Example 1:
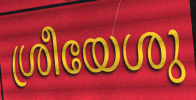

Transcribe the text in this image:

ശ്രീയേശു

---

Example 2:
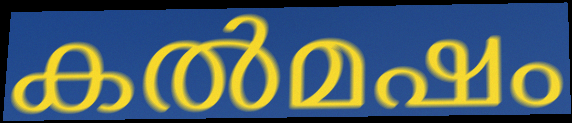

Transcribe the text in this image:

കൽമഷം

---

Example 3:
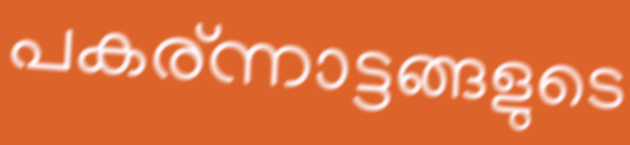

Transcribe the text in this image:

പകര്ന്നാട്ടങ്ങളുടെ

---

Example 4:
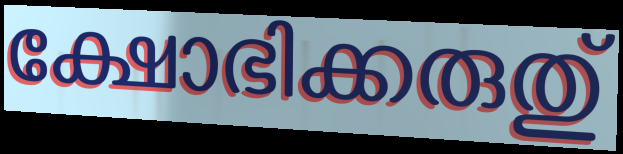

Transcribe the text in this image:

ക്ഷോഭിക്കരുതു്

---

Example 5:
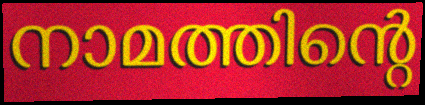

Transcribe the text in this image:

നാമത്തിന്റെ